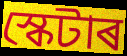
স্কেটাৰ